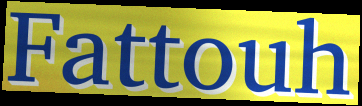
Fattouh